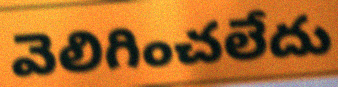
వెలిగించలేదు